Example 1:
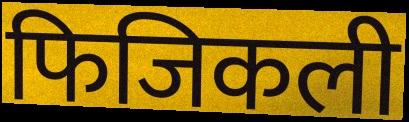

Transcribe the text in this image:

फिजिकली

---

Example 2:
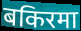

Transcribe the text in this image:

बकिरमा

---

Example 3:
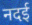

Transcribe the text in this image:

नदई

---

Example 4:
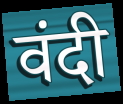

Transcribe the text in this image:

वंदी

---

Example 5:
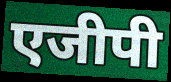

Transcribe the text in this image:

एजीपी